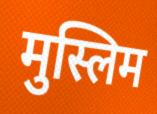
मुस्लिम